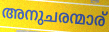
അനുചരന്മാര്